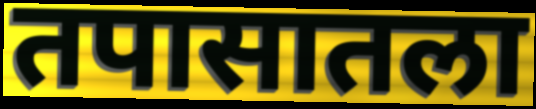
तपासातला